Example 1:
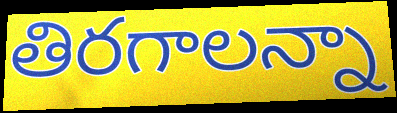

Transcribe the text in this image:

తిరగాలన్నా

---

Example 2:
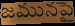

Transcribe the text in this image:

జమునపై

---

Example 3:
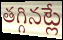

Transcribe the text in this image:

తగ్గినట్లే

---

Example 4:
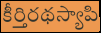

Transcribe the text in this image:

కీర్తిరథస్యాపి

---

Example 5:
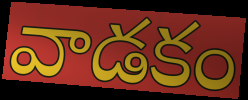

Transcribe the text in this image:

వాడకం